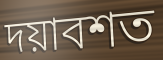
দয়াবশত